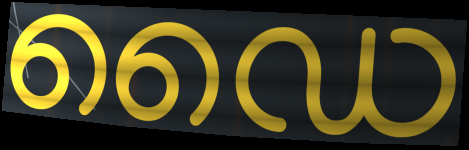
ഡൈ